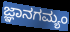
ಜ್ಞಾನಗಮ್ಯಂ